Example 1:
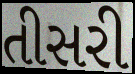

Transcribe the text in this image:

તીસરી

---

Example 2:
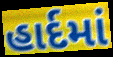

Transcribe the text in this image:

હાર્દમાં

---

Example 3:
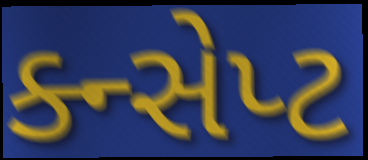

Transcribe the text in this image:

ક્ન્સેપ્ટ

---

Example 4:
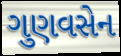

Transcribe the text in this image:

ગુણવસેન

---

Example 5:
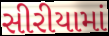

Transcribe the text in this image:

સીરીયામાં